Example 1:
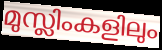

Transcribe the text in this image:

മുസ്ലിംകളിലും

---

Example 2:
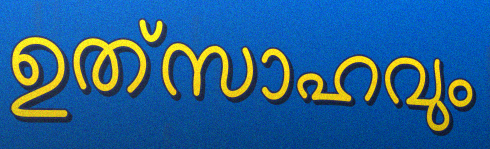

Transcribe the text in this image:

ഉത്‌സാഹവും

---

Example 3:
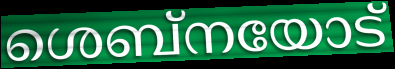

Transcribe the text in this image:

ശെബ്നയോട്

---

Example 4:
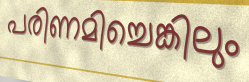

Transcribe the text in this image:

പരിണമിച്ചെങ്കിലും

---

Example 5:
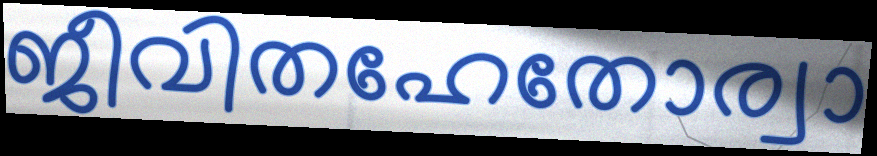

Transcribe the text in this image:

ജീവിതഹേതോര്വാ